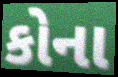
કોના